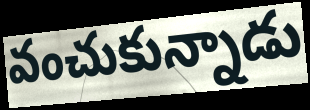
వంచుకున్నాడు